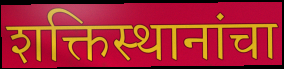
शक्तिस्थानांचा